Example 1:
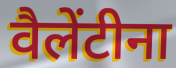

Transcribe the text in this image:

वैलेंटीना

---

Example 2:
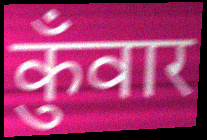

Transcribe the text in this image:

कुँवार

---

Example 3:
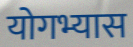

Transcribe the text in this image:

योगभ्यास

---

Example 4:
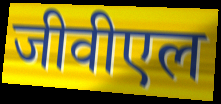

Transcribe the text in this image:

जीवीएल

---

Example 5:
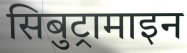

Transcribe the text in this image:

सिबुट्रामाइन